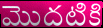
మొదటికి